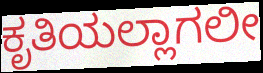
ಕೃತಿಯಲ್ಲಾಗಲೀ